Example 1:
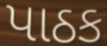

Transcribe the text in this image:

પાઠક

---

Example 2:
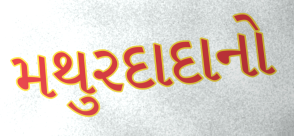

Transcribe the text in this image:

મથુરદાદાનો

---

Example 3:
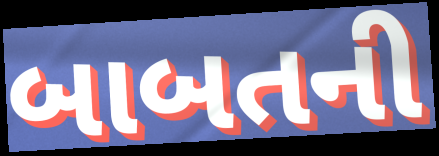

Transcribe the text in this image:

બાબતની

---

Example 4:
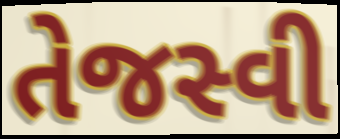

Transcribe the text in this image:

તેજસ્વી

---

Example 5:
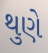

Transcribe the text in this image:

થુણે